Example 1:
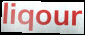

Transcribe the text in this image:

liqour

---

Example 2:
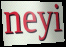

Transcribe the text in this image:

neyi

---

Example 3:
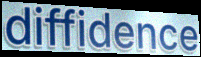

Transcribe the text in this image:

diffidence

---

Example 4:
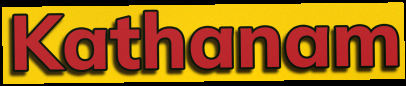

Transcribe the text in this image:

Kathanam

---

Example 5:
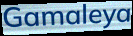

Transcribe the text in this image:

Gamaleya